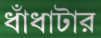
ধাঁধাটার